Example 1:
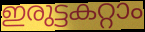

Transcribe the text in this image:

ഇരുട്ടകറ്റാം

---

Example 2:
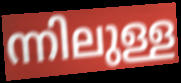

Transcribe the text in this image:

ന്നിലുള്ള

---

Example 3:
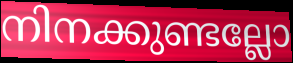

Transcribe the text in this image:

നിനക്കുണ്ടല്ലോ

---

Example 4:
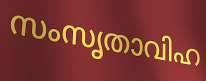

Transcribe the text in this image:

സംസൃതാവിഹ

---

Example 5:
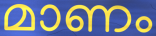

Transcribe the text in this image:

മാണം